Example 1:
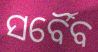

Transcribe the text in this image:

ସର୍ବୈବ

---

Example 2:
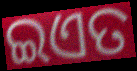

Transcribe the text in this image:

ଇଏତ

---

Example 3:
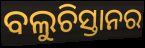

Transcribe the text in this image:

ବଲୁଚିସ୍ତାନର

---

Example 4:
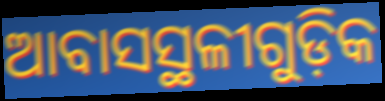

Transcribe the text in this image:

ଆବାସସ୍ଥଳୀଗୁଡ଼ିକ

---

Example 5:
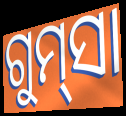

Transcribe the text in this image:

ଗୁମ୍‌ସା